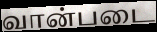
வான்படை